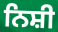
ਨਿਸ਼ੀ